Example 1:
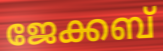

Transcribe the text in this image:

ജേക്കബ്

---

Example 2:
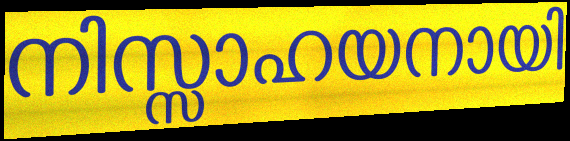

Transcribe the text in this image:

നിസ്സാഹയനായി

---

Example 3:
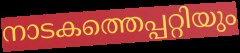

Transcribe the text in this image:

നാടകത്തെപ്പറ്റിയും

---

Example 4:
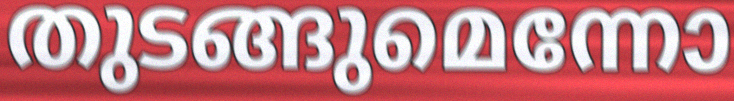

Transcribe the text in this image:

തുടങ്ങുമെന്നോ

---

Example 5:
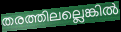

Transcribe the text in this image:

തരത്തിലല്ലെങ്കിൽ